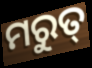
ମରୁତ୍